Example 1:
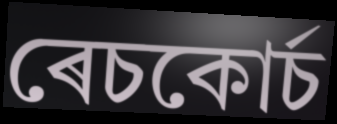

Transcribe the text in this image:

ৰেচকোৰ্চ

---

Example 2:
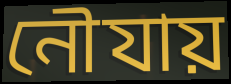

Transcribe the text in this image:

নৌযায়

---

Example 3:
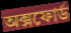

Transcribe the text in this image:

অক্সফোৰ্ড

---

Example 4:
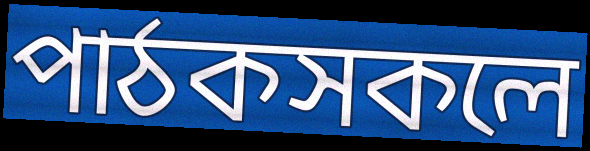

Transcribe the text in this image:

পাঠকসকলে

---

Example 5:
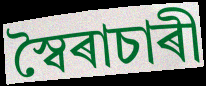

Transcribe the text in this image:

স্বৈৰাচাৰী